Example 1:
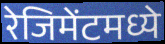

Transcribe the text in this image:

रेजिमेंटमध्ये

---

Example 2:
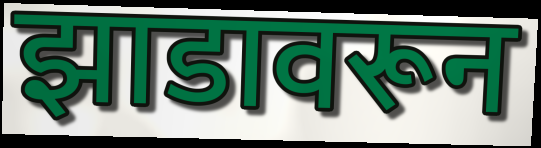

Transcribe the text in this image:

झाडावरून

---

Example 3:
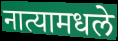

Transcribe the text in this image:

नात्यामधले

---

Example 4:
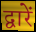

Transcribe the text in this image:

द्वारें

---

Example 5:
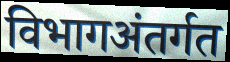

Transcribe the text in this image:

विभागअंतर्गत